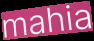
mahia